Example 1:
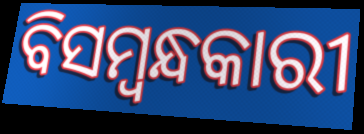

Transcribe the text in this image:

ବିସମ୍ବନ୍ଧକାରୀ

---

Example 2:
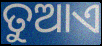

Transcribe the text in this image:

ତୁଆଏ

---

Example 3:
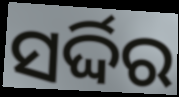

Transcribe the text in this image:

ସର୍ଦ୍ଦିର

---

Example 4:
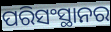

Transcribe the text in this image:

ପରିସଂସ୍ଥାନର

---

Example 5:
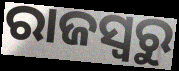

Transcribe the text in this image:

ରାଜସ୍ୱରୁ